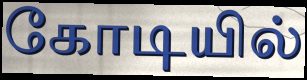
கோடியில்